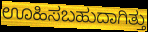
ಊಹಿಸಬಹುದಾಗಿತ್ತು